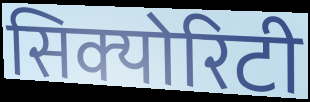
सिक्योरिटी